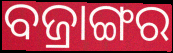
ବଜ୍ରାଙ୍ଗର